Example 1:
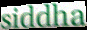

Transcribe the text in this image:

siddha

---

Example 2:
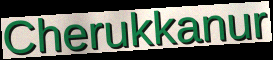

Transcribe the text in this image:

Cherukkanur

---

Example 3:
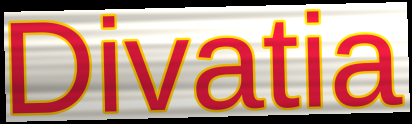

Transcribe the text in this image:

Divatia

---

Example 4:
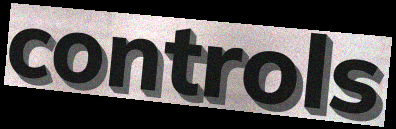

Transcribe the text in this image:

controls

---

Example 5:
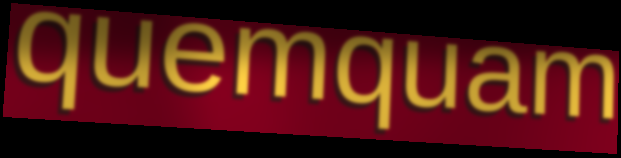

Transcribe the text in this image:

quemquam